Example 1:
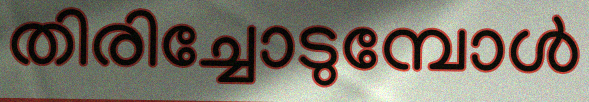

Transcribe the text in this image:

തിരിച്ചോടുമ്പോൾ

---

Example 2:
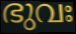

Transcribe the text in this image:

ഭുവഃ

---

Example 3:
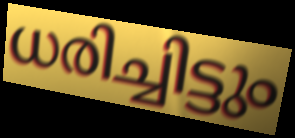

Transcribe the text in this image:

ധരിച്ചിട്ടും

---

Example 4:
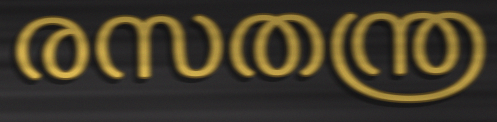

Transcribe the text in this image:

രസതന്ത്ര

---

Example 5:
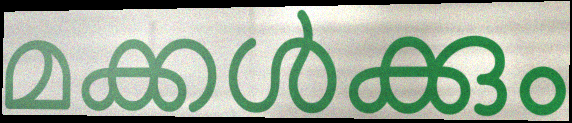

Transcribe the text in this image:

മക്കൾക്കും